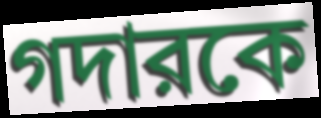
গদারকে